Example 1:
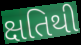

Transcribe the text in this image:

ક્ષતિથી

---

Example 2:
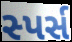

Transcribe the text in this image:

સ્પર્સ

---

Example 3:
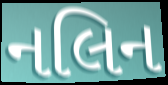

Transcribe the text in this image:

નલિન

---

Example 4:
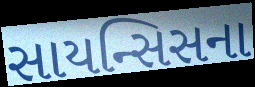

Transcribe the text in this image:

સાયન્સિસના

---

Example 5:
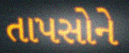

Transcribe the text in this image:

તાપસોને